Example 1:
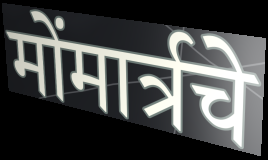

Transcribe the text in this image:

मोंमार्त्रचे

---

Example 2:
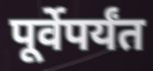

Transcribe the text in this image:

पूर्वेपर्यंत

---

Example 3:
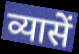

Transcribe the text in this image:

व्यासें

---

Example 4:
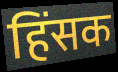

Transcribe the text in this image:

हिंसक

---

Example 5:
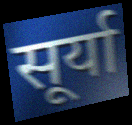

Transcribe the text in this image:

सूर्या